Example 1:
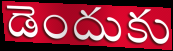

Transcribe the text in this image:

డెందుకు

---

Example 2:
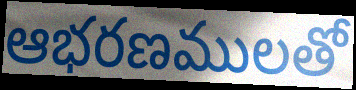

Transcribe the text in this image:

ఆభరణములతో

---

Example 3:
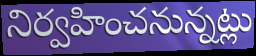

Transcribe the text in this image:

నిర్వహించనున్నట్లు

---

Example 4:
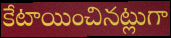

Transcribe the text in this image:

కేటాయించినట్లుగా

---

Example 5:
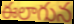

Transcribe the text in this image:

ఈలాగున